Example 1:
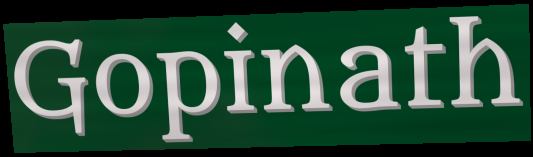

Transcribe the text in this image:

Gopinath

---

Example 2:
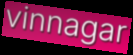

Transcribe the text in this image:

vinnagar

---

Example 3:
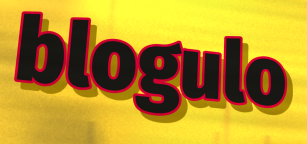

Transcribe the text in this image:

blogulo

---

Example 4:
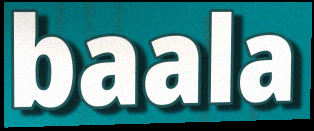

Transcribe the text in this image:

baala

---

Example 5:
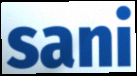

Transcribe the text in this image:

sani